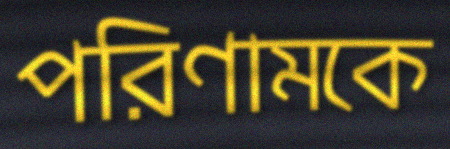
পরিণামকে